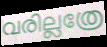
വരില്ലത്രേ